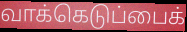
வாக்கெடுப்பைக்